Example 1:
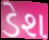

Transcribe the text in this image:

ડેશ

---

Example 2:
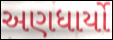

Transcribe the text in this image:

અણધાર્યો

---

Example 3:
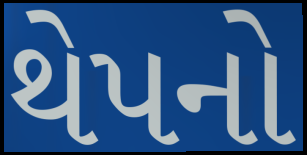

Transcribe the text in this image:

થેપનો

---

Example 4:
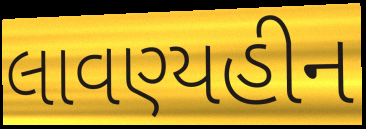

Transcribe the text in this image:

લાવણ્યહીન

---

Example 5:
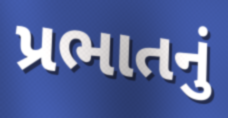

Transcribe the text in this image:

પ્રભાતનું